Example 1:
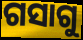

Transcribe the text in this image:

ଗସାଗୁ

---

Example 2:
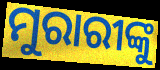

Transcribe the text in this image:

ମୁରାରୀଙ୍କୁ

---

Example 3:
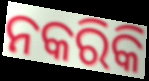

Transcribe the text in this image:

ନକରିକି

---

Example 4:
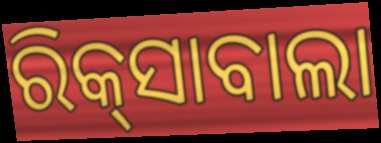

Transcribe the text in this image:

ରିକ୍‌ସାବାଲା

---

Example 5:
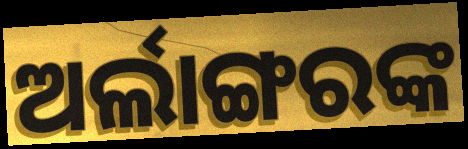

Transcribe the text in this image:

ଅର୍ଲାଙ୍ଗରଙ୍କ